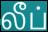
லீப்